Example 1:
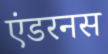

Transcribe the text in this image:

एंडरनस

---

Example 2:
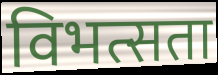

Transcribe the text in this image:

विभत्सता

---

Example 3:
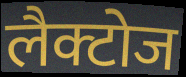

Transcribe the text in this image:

लैक्‍टोज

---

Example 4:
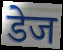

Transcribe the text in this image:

डेज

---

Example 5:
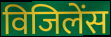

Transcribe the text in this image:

विजिलेंस